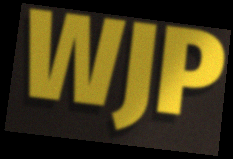
WJP